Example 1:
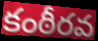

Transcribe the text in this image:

కంఠీరవ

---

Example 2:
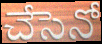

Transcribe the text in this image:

చేసెనో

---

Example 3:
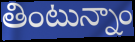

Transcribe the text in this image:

తింటున్నాం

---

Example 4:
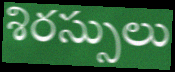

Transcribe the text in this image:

శిరస్సులు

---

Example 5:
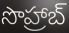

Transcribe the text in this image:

సొహ్రాబ్